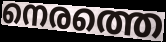
നെരത്തെ